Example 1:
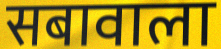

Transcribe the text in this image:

सबावाला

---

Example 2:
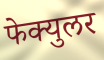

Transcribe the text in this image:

फेक्युलर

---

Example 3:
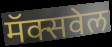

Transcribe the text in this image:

मॅक्सवेल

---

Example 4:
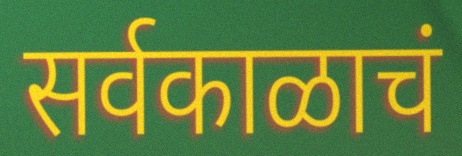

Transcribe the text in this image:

सर्वकाळाचं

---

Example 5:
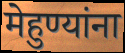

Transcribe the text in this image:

मेहुण्यांना